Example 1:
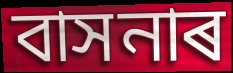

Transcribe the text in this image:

বাসনাৰ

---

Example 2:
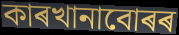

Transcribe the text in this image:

কাৰখানাবোৰৰ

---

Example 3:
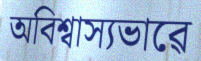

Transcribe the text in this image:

অবিশ্বাস্যভাৱে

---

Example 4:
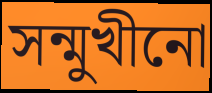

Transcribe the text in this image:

সন্মুখীনো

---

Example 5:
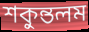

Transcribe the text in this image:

শকুন্তলম